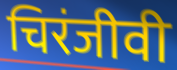
चिरंजीवी